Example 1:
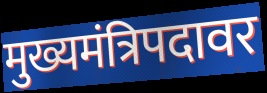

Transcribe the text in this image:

मुख्यमंत्रिपदावर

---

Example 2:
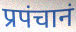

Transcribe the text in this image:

प्रपंचानं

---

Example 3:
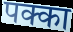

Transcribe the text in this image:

पक्का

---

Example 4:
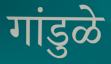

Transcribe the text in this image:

गांडुळे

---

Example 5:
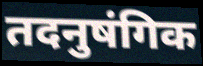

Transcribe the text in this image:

तदनुषंगिक